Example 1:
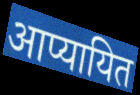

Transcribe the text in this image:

आप्यायित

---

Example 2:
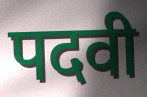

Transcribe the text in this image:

पदवी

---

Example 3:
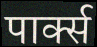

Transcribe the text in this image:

पार्क्स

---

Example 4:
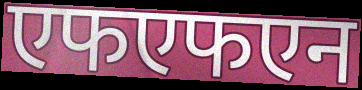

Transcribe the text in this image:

एफएफएन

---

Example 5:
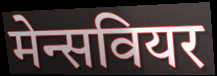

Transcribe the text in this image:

मेन्सवियर